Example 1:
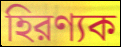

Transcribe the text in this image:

হিরণ্যক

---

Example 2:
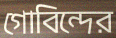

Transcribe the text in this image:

গোবিন্দের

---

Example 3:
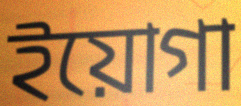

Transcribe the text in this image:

ইয়োগা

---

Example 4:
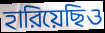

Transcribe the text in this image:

হারিয়েছিও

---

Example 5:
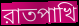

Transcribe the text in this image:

রাতপাখি